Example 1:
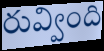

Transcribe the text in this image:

రువ్వింది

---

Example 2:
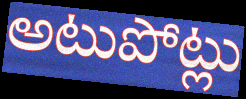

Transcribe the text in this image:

అటుపోట్లు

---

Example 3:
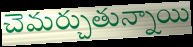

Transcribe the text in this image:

చెమర్చుతున్నాయి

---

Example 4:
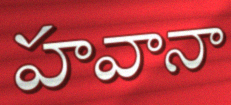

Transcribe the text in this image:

హవానా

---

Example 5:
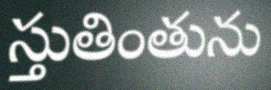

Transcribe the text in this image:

స్తుతింతును